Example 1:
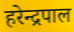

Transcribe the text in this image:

हरेन्द्रपाल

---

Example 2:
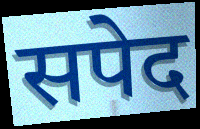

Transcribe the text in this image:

सपेद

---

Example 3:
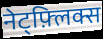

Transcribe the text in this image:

नेट्फ़्लिक्स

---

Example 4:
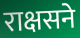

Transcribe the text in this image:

राक्षसने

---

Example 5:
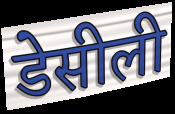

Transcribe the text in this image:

डेसीली